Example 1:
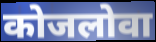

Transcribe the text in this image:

कोजलोवा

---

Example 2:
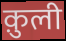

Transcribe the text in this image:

क़ुली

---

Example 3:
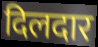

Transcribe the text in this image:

दिलदार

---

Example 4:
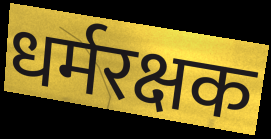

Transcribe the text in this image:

धर्मरक्षक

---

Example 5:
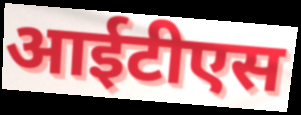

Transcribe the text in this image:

आईटीएस